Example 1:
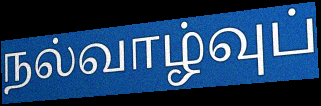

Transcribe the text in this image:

நல்வாழ்வுப்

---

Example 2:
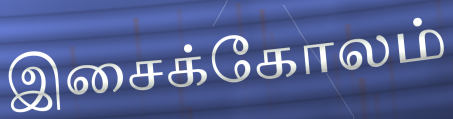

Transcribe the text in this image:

இசைக்கோலம்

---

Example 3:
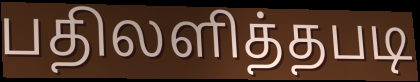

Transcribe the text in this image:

பதிலளித்தபடி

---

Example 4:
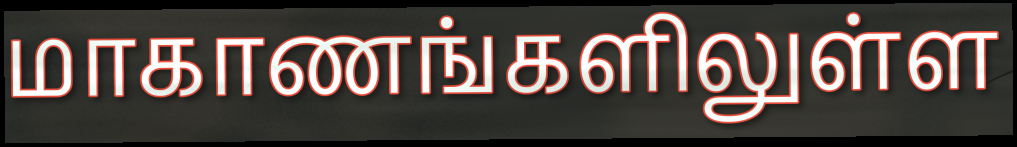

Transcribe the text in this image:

மாகாணங்களிலுள்ள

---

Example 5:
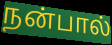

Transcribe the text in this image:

நன்பால்